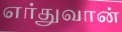
எர்துவான்